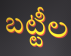
బట్టీల